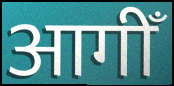
आगीँ